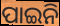
ପାଇନି